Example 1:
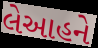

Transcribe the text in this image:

લેઆહને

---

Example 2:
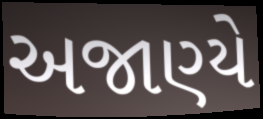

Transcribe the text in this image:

અજાણ્યે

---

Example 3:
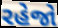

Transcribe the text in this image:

રહેજો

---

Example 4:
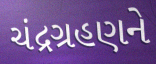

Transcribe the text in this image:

ચંદ્રગ્રહણને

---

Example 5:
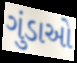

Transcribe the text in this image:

ગુંડાઓ